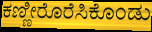
ಕಣ್ಣೀರೊರೆಸಿಕೊಂಡು